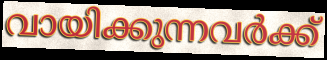
വായിക്കുന്നവർക്ക്